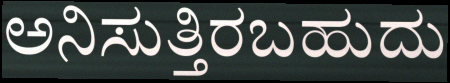
ಅನಿಸುತ್ತಿರಬಹುದು